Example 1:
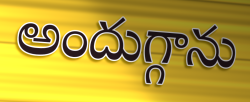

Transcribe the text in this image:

అందుగ్గాను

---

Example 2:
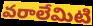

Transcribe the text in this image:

వరాలేమిటి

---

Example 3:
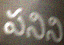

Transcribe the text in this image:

పనిని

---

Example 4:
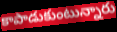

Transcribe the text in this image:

కాపాడుకుంటున్నారు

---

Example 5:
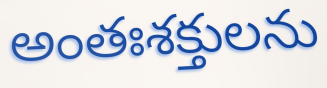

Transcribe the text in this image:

అంతఃశక్తులను